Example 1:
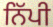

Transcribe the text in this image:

ਨਿੱਪੀ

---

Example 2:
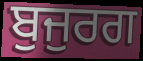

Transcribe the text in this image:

ਬੁਜੁਰਗ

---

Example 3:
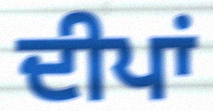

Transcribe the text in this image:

ਦੀਪਾਂ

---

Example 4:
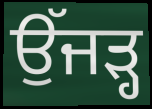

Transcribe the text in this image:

ਉੱਜੜ੍ਹ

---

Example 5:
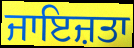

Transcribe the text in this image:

ਜਾਇਜ਼ਤਾ